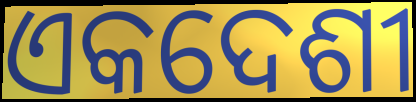
ଏକଦେଶୀ